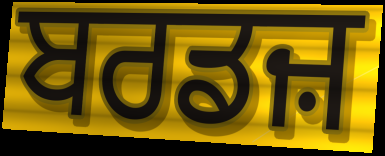
ਬਰਡਜ਼